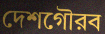
দেশগৌরব